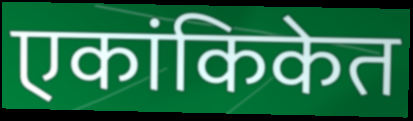
एकांकिकेत